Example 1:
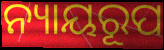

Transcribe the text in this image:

ନ୍ୟାୟରୂପ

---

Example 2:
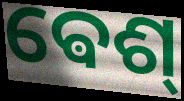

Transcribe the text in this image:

ଵେଶ୍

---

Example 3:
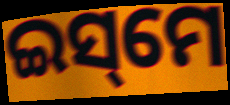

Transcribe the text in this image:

ଇସ୍‌ମେ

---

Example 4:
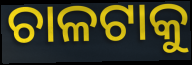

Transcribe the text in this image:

ଚାଳଟାକୁ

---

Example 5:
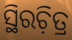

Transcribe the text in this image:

ସ୍ଥିରଚ଼ିତ୍ର